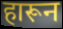
हारून